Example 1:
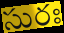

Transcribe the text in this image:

సురః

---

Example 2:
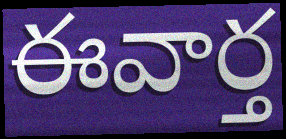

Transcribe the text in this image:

ఈవార్త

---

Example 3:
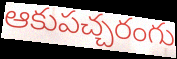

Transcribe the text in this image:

ఆకుపచ్చరంగు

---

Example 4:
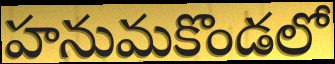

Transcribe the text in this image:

హనుమకొండలో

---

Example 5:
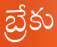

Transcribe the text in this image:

బ్రేకు